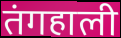
तंगहाली